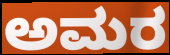
ಅಮರ